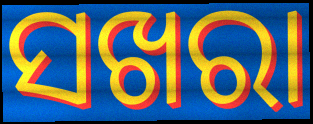
ସଖରା